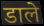
डाले